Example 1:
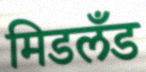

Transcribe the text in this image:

मिडलँड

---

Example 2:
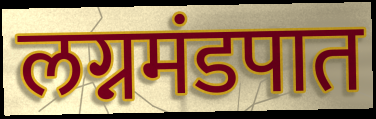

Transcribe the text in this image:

लग्नमंडपात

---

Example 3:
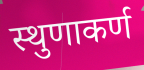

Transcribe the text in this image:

स्थुणाकर्ण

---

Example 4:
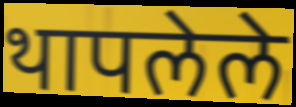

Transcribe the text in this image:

थापलेले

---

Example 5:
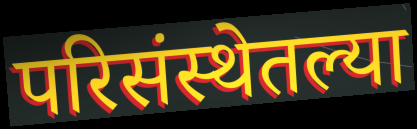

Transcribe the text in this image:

परिसंस्थेतल्या